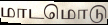
மாடமொடு